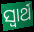
ସ୍ୱାର୍ଥ